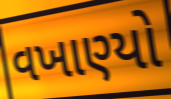
વખાણ્યો